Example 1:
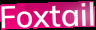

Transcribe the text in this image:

Foxtail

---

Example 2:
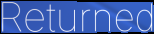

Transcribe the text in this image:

Returned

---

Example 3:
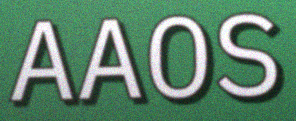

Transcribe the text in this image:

AAOS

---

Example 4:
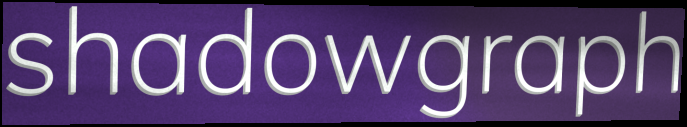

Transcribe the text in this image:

shadowgraph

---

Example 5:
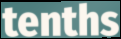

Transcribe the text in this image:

tenths